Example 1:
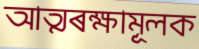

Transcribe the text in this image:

আত্মৰক্ষামূলক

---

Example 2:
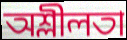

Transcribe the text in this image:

অশ্লীলতা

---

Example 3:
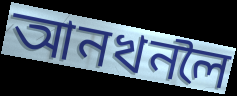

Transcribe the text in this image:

আনখনলৈ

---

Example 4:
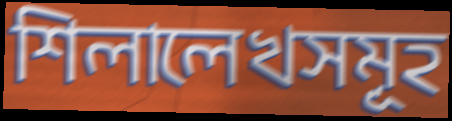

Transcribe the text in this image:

শিলালেখসমূহ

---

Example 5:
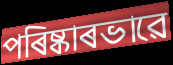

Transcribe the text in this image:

পৰিষ্কাৰভাৱে